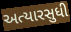
અત્યારસુધી